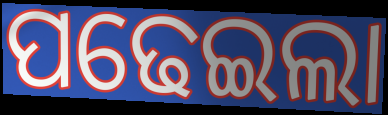
ପଢେଇଲା